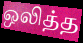
ஒலித்த